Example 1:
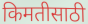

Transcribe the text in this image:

किमतीसाठी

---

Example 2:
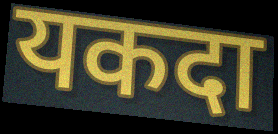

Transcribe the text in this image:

यकदा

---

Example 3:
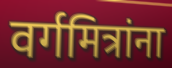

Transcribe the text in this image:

वर्गमित्रांना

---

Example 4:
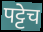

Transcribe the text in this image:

पट्टेच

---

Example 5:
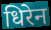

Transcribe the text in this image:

धिरेन